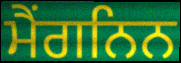
ਮੈਂਗਨਿਨ